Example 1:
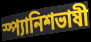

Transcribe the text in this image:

স্প্যানিশভাষী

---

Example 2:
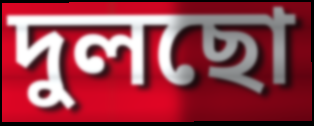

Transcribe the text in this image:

দুলছো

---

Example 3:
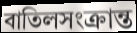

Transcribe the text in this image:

বাতিলসংক্রান্ত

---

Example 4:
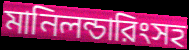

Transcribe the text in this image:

মানিলন্ডারিংসহ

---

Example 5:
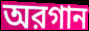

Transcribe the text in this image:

অরগান